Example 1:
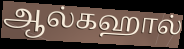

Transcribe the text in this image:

ஆல்கஹால்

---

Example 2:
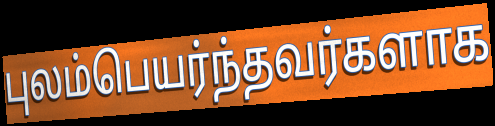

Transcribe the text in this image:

புலம்பெயர்ந்தவர்களாக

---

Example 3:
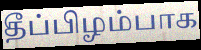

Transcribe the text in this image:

தீப்பிழம்பாக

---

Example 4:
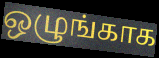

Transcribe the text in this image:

ஒழுங்காக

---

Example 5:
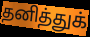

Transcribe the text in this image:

தனித்துக்